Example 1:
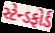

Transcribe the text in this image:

સ્ટેન્ડફોર્ડ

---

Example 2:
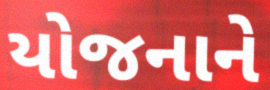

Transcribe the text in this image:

યોજનાને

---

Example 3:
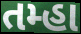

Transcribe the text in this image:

તમ્હા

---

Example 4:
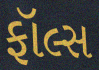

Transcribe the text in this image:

ફૉલ્સ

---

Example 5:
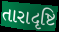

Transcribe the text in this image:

તારાદૃષ્ટિ